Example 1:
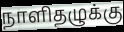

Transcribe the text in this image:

நாளிதழுக்கு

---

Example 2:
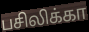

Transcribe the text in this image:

பசிலிக்கா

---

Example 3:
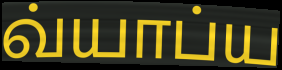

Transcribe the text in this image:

வ்யாப்ய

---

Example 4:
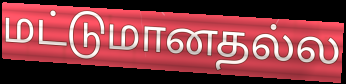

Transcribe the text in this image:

மட்டுமானதல்ல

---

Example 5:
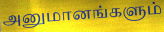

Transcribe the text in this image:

அனுமானங்களும்